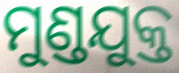
ମୁଣ୍ଡଯୁକ୍ତ